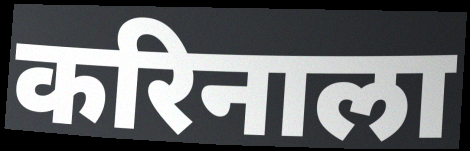
करिनाला